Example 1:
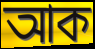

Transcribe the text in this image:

আক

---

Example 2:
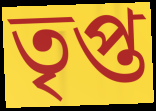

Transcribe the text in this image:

তৃপ্ত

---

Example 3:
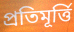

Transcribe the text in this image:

প্ৰতিমূৰ্ত্তি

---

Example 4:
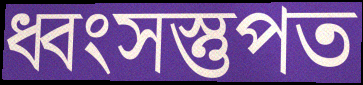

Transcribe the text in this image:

ধ্বংসস্তুপত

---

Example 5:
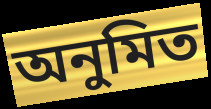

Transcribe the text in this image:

অনুমিত